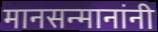
मानसन्मानांनी